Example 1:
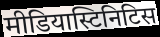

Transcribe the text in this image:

मीडियास्टिनिटिस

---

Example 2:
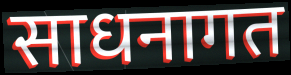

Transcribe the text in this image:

साधनागत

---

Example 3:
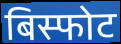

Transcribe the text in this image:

बिस्फोट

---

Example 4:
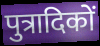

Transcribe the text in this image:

पुत्रादिकों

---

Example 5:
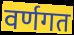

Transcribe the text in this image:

वर्णगत